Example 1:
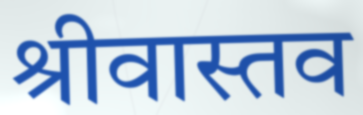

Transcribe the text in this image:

श्रीवास्‍तव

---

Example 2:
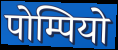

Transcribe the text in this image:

पोम्पियो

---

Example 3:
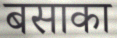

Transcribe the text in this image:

बसाका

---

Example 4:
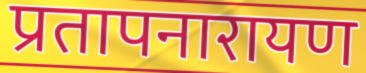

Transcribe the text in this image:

प्रतापनारायण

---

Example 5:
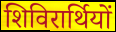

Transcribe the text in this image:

शिविरार्थियों